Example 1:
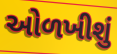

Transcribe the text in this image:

ઓળખીશું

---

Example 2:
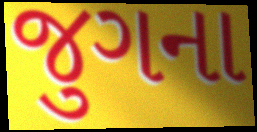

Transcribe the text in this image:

જુગના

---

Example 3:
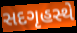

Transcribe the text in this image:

સદગૃહસ્થે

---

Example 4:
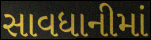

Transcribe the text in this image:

સાવધાનીમાં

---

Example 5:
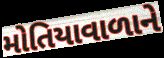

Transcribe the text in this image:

મોતિયાવાળાને